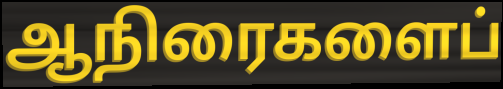
ஆநிரைகளைப்